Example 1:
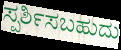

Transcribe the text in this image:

ಸ್ಪರ್ಶಿಸಬಹುದು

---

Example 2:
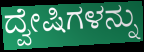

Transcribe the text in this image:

ದ್ವೇಷಿಗಳನ್ನು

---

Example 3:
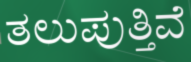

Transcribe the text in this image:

ತಲುಪುತ್ತಿವೆ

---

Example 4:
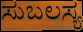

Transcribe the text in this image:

ಸುಬಲಸ್ಯ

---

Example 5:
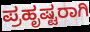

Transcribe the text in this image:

ಪ್ರಹೃಷ್ಟರಾಗಿ